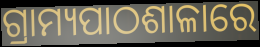
ଗ୍ରାମ୍ୟପାଠଶାଳାରେ